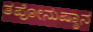
ತಪೋನುಷ್ಠಾನ